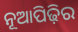
ନୂଆପିଢ଼ିର